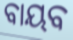
ବାୟବ